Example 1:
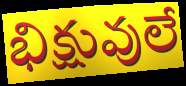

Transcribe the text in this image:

భిక్షువులే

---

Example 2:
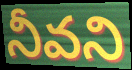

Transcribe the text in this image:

నీవని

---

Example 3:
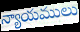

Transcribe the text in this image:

న్యాయములు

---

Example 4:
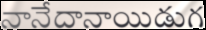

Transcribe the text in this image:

నానేదానాయిడుగ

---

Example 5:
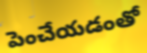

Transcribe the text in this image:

పెంచేయడంతో